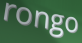
rongo